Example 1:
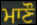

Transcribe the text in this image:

ਮਾਣੌ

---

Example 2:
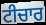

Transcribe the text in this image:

ਟੀਚਾਰ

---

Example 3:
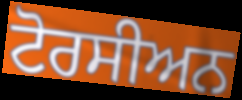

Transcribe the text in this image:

ਟੋਰਸੀਅਨ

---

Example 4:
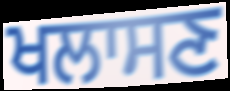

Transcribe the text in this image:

ਖਲਾਸਣ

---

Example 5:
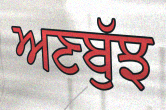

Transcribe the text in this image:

ਅਣਬੁੱਝ